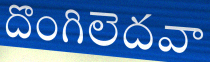
దొంగిలెదవా